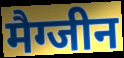
मैग्जीन